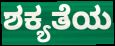
ಶಕ್ಯತೆಯ